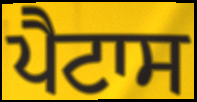
ਪੈਟਾਸ